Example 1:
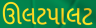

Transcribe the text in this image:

ઊલટપાલટ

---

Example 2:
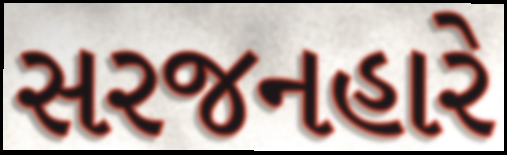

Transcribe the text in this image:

સરજનહારે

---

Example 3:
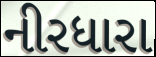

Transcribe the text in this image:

નીરધારા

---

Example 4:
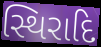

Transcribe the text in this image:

સ્થિરાદિ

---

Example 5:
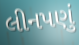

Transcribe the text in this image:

લીનપણું